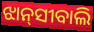
ଝାନ୍‌ସୀବାଲି